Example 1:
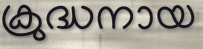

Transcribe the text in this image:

ക്രുദ്ധനായ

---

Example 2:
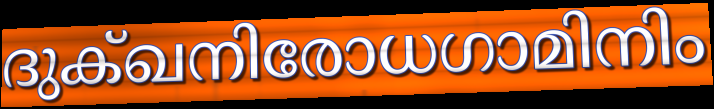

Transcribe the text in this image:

ദുക്ഖനിരോധഗാമിനിം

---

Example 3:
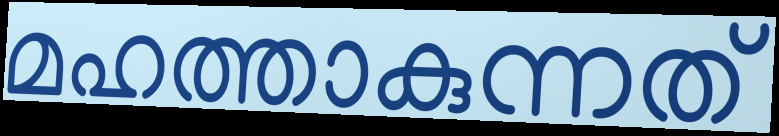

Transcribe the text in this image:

മഹത്താകുന്നത്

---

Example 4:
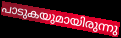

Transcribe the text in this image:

പാടുകയുമായിരുന്നു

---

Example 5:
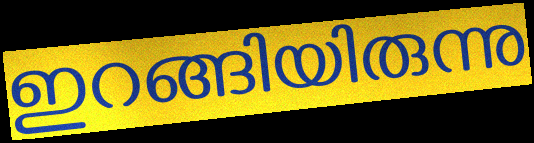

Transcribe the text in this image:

ഇറങ്ങിയിരുന്നു